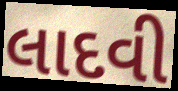
લાદવી